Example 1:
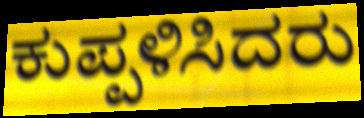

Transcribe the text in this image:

ಕುಪ್ಪಳಿಸಿದರು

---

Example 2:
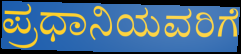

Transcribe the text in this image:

ಪ್ರಧಾನಿಯವರಿಗೆ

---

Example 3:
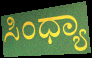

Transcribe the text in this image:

ಸಿಂಧ್ಯಾ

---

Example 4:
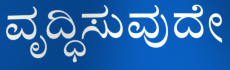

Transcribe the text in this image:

ವೃದ್ಧಿಸುವುದೇ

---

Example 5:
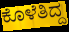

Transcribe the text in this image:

ಕೊಳೆತಿದ್ದ